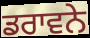
ਡਰਾਵਨੇ